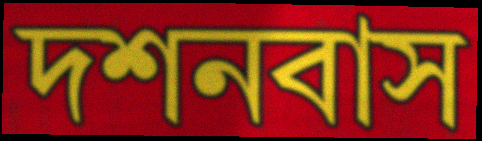
দশনবাস